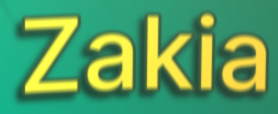
Zakia